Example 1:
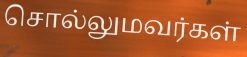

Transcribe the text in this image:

சொல்லுமவர்கள்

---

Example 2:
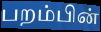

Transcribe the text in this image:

பறம்பின்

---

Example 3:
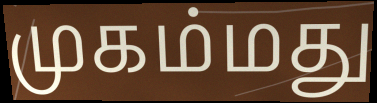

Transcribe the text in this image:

முகம்மது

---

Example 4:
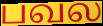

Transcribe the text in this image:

பவல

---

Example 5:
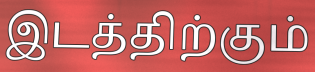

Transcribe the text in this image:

இடத்திற்கும்